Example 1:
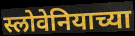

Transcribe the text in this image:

स्लोवेनियाच्या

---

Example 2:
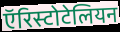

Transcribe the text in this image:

ऍरिस्टोटेलियन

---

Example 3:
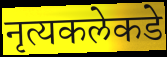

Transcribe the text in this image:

नृत्यकलेकडे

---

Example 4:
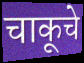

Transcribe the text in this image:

चाकूचे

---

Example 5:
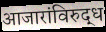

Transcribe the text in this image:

आजारांविरुद्ध